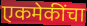
एकमेकींचा